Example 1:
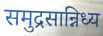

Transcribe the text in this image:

समुद्रसान्निध्य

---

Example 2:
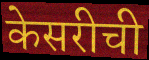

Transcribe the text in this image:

केसरीची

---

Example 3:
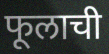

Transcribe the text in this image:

फूलाची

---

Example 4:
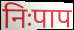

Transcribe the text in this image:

निःपाप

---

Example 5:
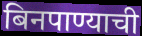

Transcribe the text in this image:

बिनपाण्याची